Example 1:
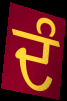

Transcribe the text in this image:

ਦੰ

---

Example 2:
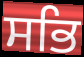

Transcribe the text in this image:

ਸਭਿ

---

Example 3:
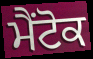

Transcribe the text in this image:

ਮੈਂਟੋਕ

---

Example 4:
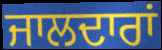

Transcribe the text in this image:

ਜਾਲਦਾਰਾਂ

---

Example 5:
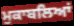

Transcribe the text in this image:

ਮੁਕਾਬਲਿਆਂ